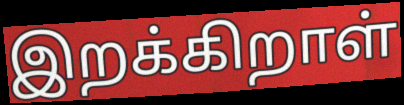
இறக்கிறாள்